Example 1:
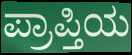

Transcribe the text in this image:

ಪ್ರಾಪ್ತಿಯ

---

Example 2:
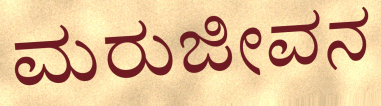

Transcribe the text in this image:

ಮರುಜೀವನ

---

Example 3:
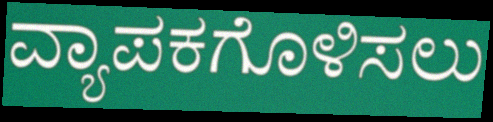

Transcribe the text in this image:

ವ್ಯಾಪಕಗೊಳಿಸಲು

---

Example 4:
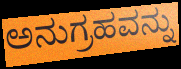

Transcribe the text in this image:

ಅನುಗ್ರಹವನ್ನು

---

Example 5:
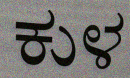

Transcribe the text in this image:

ಕುಳ